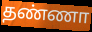
தண்ணா